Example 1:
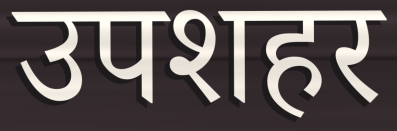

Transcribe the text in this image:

उपशहर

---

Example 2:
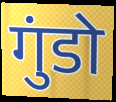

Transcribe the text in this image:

गुंडो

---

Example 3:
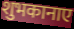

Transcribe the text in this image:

शुभकानाए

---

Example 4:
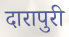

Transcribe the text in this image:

दारापुरी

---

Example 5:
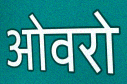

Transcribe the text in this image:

ओवरो